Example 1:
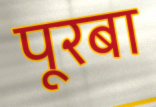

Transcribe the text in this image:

पूरबा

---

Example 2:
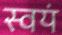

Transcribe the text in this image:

स्‍वयं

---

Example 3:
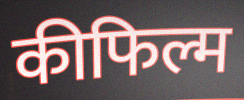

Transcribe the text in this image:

कीफिल्म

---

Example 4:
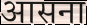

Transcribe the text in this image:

आसना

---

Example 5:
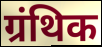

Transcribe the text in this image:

ग्रंथिक